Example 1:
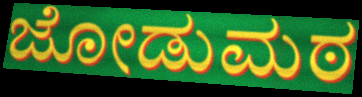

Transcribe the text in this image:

ಜೋಡುಮಠ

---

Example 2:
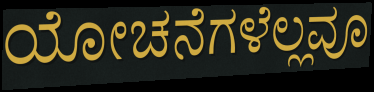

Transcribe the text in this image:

ಯೋಚನೆಗಳೆಲ್ಲವೂ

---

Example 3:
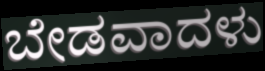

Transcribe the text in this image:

ಬೇಡವಾದಳು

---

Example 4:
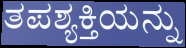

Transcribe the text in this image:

ತಪಶ್ಯಕ್ತಿಯನ್ನು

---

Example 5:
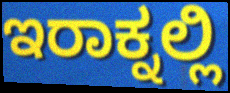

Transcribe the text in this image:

ಇರಾಕ್ನಲ್ಲಿ